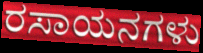
ರಸಾಯನಗಳು